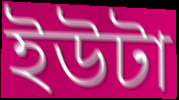
ইউটা